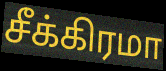
சீக்கிரமா